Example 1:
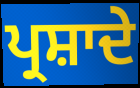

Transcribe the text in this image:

ਪ੍ਰਸ਼ਾਦੇ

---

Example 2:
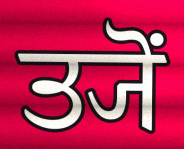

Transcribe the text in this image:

ਤ੍ਯੋਂ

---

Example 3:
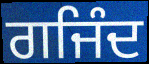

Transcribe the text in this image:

ਗਜਿੰਦ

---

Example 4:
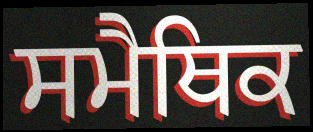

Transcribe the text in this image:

ਸਮੈਥਿਕ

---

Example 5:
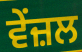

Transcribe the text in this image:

ਵੇਂਜ਼ਲ